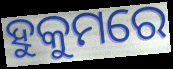
ହୁକୁମରେ